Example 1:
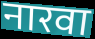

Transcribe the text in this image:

नारवा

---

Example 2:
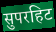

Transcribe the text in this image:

सुपरहिट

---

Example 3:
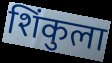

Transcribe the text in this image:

शिंकुला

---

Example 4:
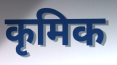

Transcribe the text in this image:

कृमिक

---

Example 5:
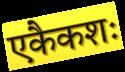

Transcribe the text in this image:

एकैकशः